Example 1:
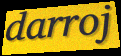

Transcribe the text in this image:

darroj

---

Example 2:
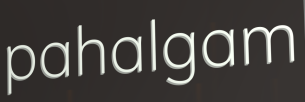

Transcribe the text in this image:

pahalgam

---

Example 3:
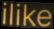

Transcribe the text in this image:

ilike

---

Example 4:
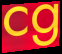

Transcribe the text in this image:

cg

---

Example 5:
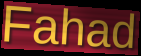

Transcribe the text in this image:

Fahad